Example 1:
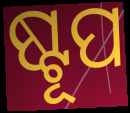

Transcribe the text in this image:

ଷ୍ଟୂପ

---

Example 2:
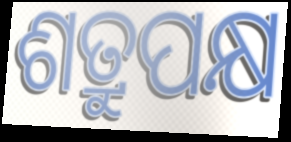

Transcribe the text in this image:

ଶତ୍ରୁପକ୍ଷ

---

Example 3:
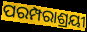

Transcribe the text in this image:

ପରମ୍ପରାଶ୍ରୟୀ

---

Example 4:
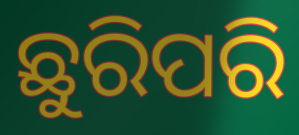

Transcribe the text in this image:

ଛୁରିପରି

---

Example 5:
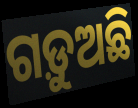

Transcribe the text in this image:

ଗଡ଼ୁଅଛି